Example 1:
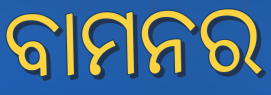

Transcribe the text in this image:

ବାମନର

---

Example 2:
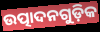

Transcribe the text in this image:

ଉତ୍ପାଦନଗୁଡ଼ିକ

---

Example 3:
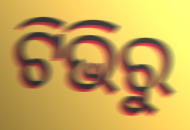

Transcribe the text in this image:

ଟିଭିରୁ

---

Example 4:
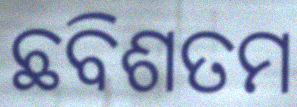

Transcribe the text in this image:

ଛବିଶତମ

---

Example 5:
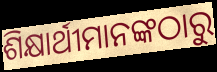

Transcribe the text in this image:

ଶିକ୍ଷାର୍ଥୀମାନଙ୍କଠାରୁ